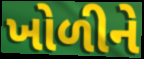
ખોળીને